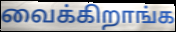
வைக்கிறாங்க